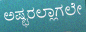
ಅಷ್ಟರಲ್ಲಾಗಲೇ